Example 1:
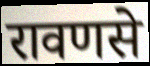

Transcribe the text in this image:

रावणसे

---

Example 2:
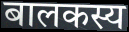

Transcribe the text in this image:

बालकस्य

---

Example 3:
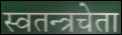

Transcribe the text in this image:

स्वतन्त्रचेता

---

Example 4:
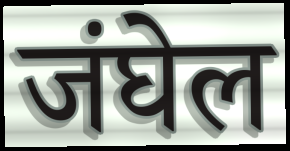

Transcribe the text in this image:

जंघेल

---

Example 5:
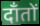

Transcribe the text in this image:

दाँतों